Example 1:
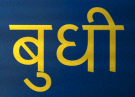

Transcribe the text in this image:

बुधी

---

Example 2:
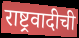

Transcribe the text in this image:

राष्ट्रवादीची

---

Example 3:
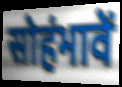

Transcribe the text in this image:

सोहंभावें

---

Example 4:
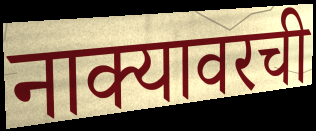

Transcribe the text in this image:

नाक्यावरची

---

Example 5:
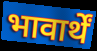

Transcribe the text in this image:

भावार्थें